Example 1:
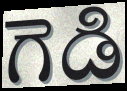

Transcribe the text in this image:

గెడి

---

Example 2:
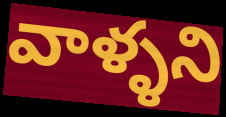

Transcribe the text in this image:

వాళ్ళని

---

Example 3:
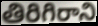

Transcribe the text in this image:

తిరిగిరాని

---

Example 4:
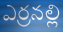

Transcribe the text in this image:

ఎర్రనల్లి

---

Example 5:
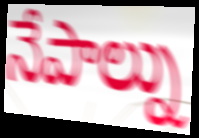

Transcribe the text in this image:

నేపాల్ను